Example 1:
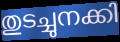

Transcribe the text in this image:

തുടച്ചുനക്കി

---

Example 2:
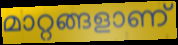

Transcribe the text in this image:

മാറ്റങ്ങളാണ്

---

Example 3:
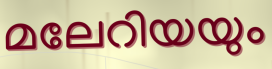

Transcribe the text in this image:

മലേറിയയും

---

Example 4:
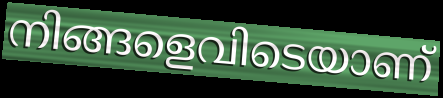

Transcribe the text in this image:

നിങ്ങളെവിടെയാണ്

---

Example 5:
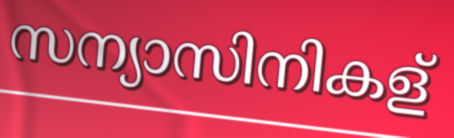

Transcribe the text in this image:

സന്യാസിനികള്